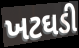
ખટઘડી